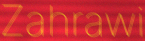
Zahrawi